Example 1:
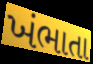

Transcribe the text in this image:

ખંભાતા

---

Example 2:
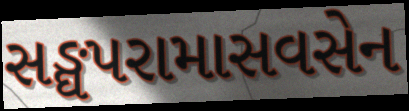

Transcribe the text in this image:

સઙ્ઘપરામાસવસેન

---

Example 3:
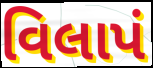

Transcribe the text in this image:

વિલાપં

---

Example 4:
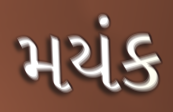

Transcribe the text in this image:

મયંક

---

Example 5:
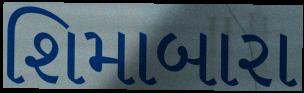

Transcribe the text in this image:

શિમાબારા